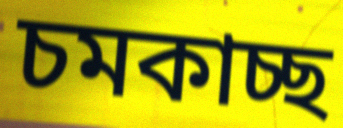
চমকাচ্ছ